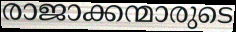
രാജാക്കന്മാരുടെ